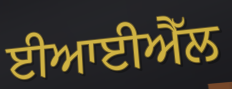
ਈਆਈਐੱਲ